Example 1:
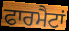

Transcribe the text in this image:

ਫਾਰਮੈਟਾਂ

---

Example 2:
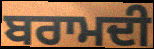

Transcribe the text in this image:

ਬਰਾਮਦੀ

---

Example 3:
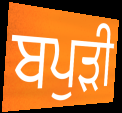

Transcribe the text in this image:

ਬਪੁੜੀ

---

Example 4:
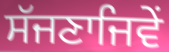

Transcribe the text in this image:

ਸੱਜਣਾਜਿਵੇਂ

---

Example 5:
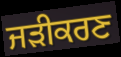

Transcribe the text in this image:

ਜੜੀਕਰਣ